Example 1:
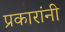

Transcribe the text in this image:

प्रकारांनी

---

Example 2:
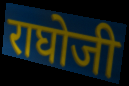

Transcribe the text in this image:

राघोजी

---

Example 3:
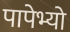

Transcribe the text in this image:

पापेभ्यो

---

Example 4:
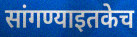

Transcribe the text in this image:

सांगण्याइतकेच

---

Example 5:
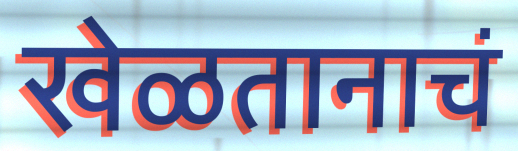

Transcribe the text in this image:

खेळतानाचं